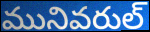
మునివరుల్